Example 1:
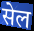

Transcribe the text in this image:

सेल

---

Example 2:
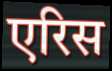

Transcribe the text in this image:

एरिस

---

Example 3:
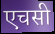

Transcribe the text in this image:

एचसी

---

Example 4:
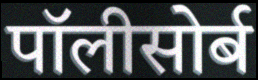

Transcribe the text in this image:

पॉलीसोर्ब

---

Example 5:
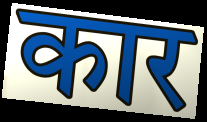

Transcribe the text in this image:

कार